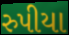
રુપીયા